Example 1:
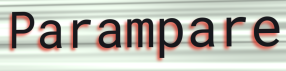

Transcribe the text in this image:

Parampare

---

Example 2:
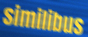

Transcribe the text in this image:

similibus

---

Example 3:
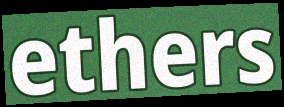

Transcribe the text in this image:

ethers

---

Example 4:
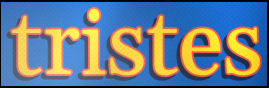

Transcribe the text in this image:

tristes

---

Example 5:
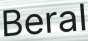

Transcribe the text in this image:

Beral